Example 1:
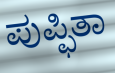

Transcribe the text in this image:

ಪುಪ್ಫಿತಾ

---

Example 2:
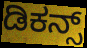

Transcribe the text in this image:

ಡಿಕನ್ಸ್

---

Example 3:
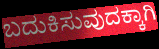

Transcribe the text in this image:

ಬದುಕಿಸುವುದಕ್ಕಾಗಿ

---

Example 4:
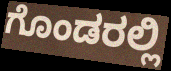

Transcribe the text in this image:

ಗೊಂಡರಲ್ಲಿ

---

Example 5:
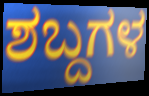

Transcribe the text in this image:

ಶಬ್ದಗಳ